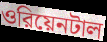
ওরিয়েনটাল